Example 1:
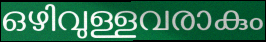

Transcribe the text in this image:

ഒഴിവുള്ളവരാകും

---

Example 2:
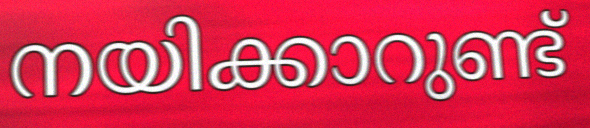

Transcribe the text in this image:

നയിക്കാറുണ്ട്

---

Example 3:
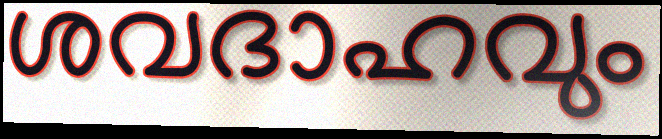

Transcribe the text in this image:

ശവദാഹവും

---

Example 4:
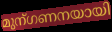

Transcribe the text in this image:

മുന്ഗണനയായി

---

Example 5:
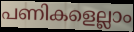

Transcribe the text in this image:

പണികളെല്ലാം